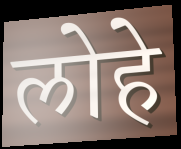
लोहे